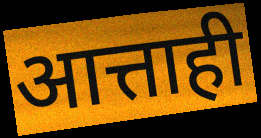
आत्ताही